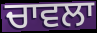
ਚਾਵਲਾ